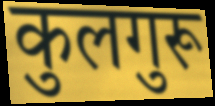
कुलगुरू